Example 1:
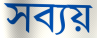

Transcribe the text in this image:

সব্যয়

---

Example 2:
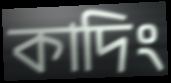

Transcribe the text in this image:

কাদিং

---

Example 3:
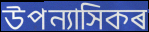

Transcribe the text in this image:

উপন্যাসিকৰ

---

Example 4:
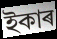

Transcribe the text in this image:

ইকাৰ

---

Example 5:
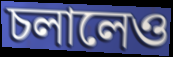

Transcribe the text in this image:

চলালেও